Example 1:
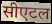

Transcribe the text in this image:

सीएटल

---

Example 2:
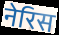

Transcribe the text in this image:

नेरिस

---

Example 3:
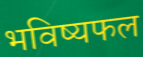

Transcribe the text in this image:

भविष्यफल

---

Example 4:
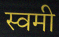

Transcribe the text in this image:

स्वमी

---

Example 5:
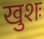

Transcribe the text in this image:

खुशः